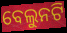
ବେଲୁନଟି